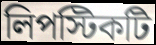
লিপস্টিকটি